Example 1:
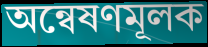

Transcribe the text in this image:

অন্বেষণমূলক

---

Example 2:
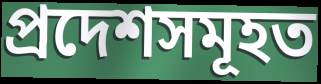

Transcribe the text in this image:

প্ৰদেশসমূহত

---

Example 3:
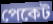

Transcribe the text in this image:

পেকেট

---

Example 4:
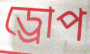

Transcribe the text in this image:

ড্ৰোপ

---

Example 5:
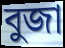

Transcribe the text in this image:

বুজা